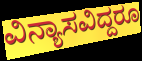
ವಿನ್ಯಾಸವಿದ್ದರೂ